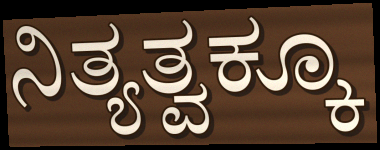
ನಿತ್ಯತ್ವಕ್ಕೂ